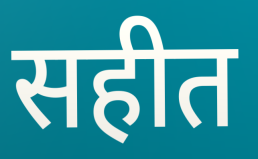
सहीत